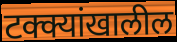
टक्क्यांखालील